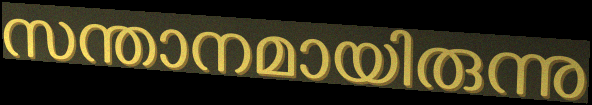
സന്താനമായിരുന്നു